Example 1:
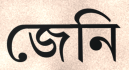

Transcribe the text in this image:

জেনি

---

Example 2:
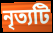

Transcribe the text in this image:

নৃত্যটি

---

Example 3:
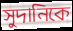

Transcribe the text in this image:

সুদানিকে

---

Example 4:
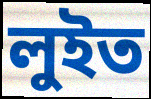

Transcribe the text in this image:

লুইত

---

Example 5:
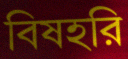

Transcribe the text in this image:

বিষহরি